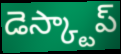
డెస్క్టాప్